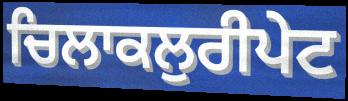
ਚਿਲਾਕਲੁਰੀਪੇਟ